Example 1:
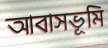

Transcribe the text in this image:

আবাসভূমি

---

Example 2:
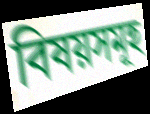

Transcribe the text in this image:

বিষয়সমূহ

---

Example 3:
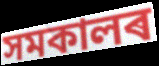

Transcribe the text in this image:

সমকালৰ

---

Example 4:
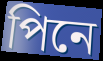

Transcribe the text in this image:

পিনে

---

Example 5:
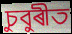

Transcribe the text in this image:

চুবুৰীত